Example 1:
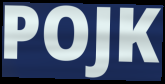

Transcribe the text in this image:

POJK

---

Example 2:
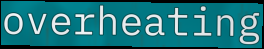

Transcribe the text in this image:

overheating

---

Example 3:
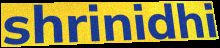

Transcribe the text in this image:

shrinidhi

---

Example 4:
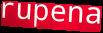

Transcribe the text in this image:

rupena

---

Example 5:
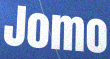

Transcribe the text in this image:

Jomo